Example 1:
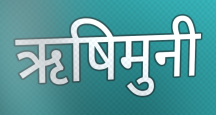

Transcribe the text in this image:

ऋषिमुनी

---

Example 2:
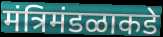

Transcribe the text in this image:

मंत्रिमंडळाकडे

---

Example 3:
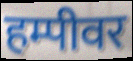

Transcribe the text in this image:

हम्पीवर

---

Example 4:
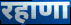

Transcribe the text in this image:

रहाणा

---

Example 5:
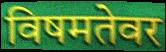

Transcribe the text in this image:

विषमतेवर